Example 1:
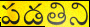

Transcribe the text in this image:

పడతిని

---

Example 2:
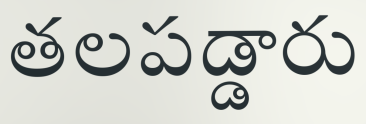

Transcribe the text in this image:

తలపడ్డారు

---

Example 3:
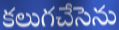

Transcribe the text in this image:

కలుగచేసెను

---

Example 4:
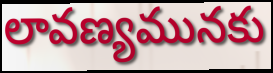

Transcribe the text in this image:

లావణ్యమునకు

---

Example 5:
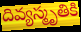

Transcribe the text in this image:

దివ్యస్మృతికి